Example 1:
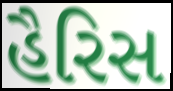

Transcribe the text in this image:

હૈરિસ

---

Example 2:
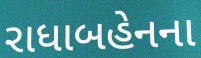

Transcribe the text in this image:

રાધાબહેનના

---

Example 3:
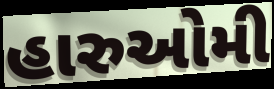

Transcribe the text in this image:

હારુઓમી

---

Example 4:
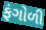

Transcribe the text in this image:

ફંગોળી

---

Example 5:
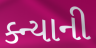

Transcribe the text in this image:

ક્ન્યાની